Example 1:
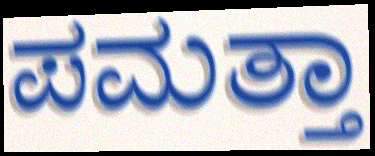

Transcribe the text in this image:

ಪಮತ್ತಾ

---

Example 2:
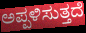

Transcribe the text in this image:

ಅಪ್ಪಳಿಸುತ್ತದೆ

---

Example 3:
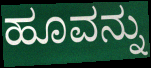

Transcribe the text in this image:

ಹೂವನ್ನು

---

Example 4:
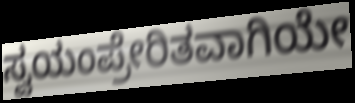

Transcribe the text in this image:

ಸ್ವಯಂಪ್ರೇರಿತವಾಗಿಯೇ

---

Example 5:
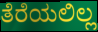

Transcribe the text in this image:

ತೆರೆಯಲಿಲ್ಲ